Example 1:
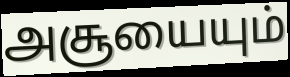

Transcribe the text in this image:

அசூயையும்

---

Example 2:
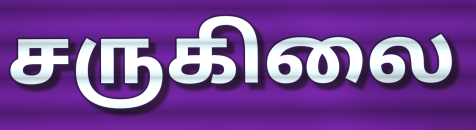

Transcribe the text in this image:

சருகிலை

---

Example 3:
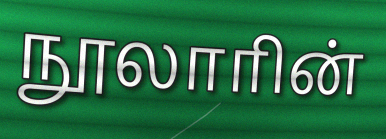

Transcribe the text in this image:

நூலாரின்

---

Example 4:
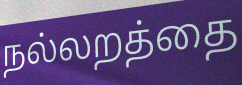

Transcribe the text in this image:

நல்லறத்தை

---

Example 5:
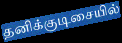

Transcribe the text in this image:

தனிக்குடிசையில்